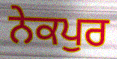
ਨੇਕਪੁਰ